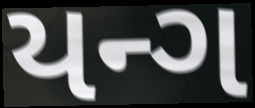
યન્ગ